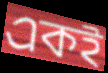
একই